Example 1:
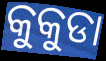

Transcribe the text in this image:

କୁକୁଡା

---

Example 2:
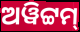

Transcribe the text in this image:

ଅୱିଟ୍ଟମ୍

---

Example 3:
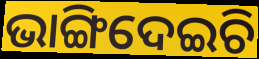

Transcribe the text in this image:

ଭାଙ୍ଗିଦେଇଚି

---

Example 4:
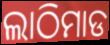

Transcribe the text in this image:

ଲାଠିମାଡ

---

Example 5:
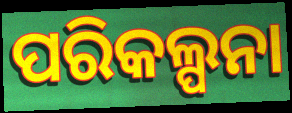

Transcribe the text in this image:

ପରିକଲ୍ପନା